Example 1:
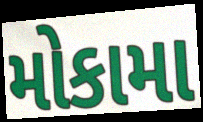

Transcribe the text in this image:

મોકામા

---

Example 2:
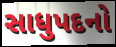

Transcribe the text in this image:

સાધુપદનો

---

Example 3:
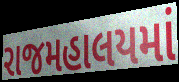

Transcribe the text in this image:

રાજમહાલયમાં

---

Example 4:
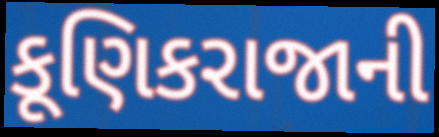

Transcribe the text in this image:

કૂણિકરાજાની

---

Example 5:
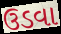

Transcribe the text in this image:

ઉડવા